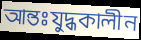
আন্তঃযুদ্ধকালীন